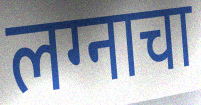
लग्नाचा